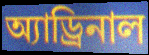
অ্যাড্রিনাল